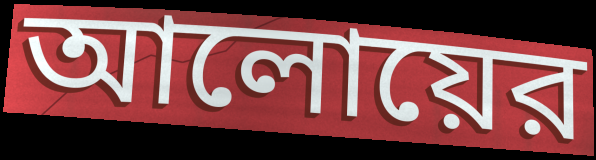
আলোয়ের